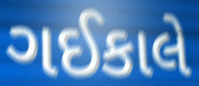
ગઈકાલે